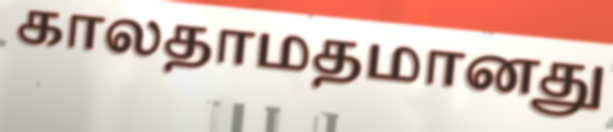
காலதாமதமானது